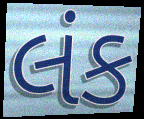
લંક